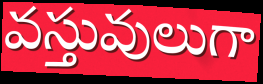
వస్తువులుగా